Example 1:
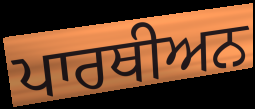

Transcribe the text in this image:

ਪਾਰਥੀਅਨ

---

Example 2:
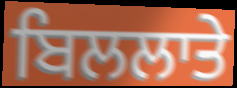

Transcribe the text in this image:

ਬਿਲਲਾਤੇ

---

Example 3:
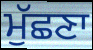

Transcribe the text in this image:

ਮੁੱਛਣਾ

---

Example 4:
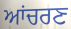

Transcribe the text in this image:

ਆਂਚਰਣ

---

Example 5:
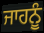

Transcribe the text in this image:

ਜਾਹਨੂੰ